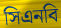
সিএনবি